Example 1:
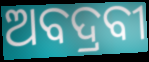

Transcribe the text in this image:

ଅବଦ୍ରବୀ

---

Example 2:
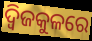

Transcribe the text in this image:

ଦ୍ୱିଜକୁଳରେ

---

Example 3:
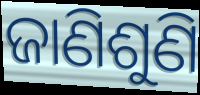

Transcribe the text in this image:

ଜାଣିଶୁଣି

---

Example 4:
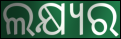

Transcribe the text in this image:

ଲକ୍ଷ୍ୟର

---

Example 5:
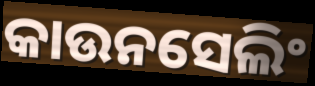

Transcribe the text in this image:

କାଉନସେଲିଂ